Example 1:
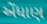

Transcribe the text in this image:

એંધાણ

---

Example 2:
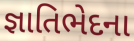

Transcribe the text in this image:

જ્ઞાતિભેદના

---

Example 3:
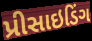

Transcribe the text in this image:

પ્રીસાઇડિંગ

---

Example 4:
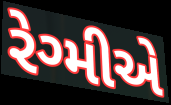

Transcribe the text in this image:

રેગ્મીએ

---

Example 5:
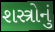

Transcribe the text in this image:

શસ્ત્રોનું